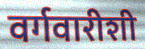
वर्गवारीशी